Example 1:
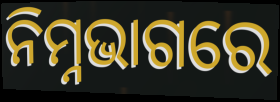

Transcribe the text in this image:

ନିମ୍ନଭାଗରେ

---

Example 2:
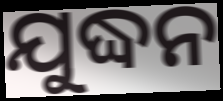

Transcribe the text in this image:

ଯୁଦ୍ଧନ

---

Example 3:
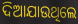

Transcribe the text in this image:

ଦିଆଯାଉଥିଲେ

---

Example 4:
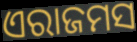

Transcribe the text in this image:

ଏରାଜମସ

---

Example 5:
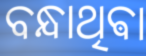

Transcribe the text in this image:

ବନ୍ଧାଥିଵା